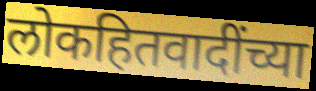
लोकहितवादींच्या